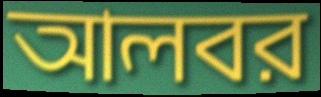
আলবর